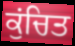
ਕੁਂਚਿਤ